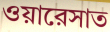
ওয়ারেসাত